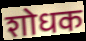
शोधक